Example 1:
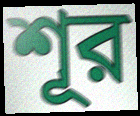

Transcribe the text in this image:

শূর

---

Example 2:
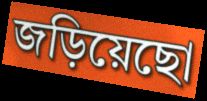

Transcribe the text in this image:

জড়িয়েছো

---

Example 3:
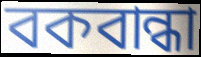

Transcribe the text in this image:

বকবান্ধা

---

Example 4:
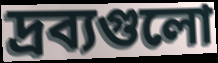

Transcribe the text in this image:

দ্রব্যগুলো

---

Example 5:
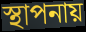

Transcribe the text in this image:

স্থাপনায়